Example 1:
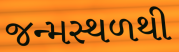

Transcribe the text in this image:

જન્મસ્થળથી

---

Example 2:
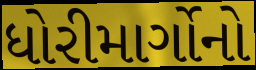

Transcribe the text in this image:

ધોરીમાર્ગોનો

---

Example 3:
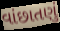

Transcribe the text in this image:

વાંછાતણું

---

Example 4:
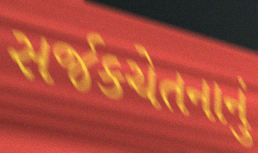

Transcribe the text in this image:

સર્જકચેતનાનું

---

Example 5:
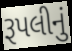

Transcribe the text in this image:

રૂપલીનું